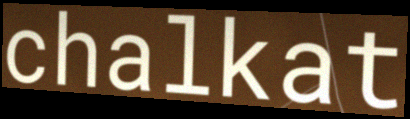
chalkat